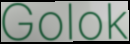
Golok